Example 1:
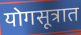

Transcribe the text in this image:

योगसूत्रात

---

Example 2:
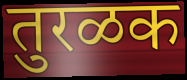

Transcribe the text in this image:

तुरळक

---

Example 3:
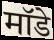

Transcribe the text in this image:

मॉडे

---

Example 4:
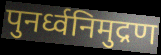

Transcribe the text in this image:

पुनर्ध्वनिमुद्रण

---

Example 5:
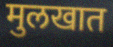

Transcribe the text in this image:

मुलखात